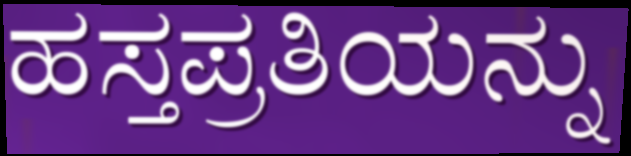
ಹಸ್ತಪ್ರತಿಯನ್ನು